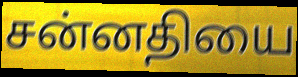
சன்னதியை